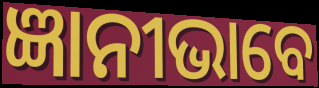
ଜ୍ଞାନୀଭାବେ